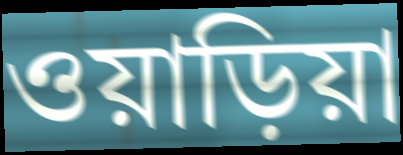
ওয়াড়িয়া